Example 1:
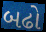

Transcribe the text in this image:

બઢો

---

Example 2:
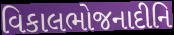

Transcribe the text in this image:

વિકાલભોજનાદીનિ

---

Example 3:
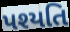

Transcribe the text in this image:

પશ્યતિ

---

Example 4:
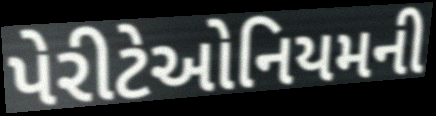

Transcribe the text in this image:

પેરીટેઓનિયમની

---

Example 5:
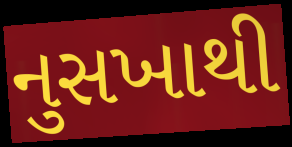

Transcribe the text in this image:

નુસખાથી